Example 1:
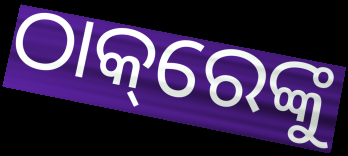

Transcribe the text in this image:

ଠାକ୍‌ରେଙ୍କୁ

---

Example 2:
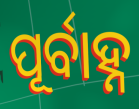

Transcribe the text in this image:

ପୂର୍ବାହ୍ନ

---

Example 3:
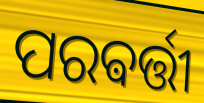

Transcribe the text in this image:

ପରଵର୍ତ୍ତୀ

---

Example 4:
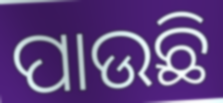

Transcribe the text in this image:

ପାଉଛି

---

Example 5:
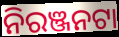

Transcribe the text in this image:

ନିରଞ୍ଜନଟା